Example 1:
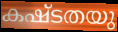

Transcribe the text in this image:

കഷ്ടതയു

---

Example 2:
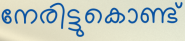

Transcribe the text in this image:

നേരിട്ടുകൊണ്ട്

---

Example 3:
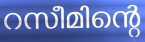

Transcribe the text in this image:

റസീമിന്റെ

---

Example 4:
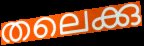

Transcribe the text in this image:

തലെക്കു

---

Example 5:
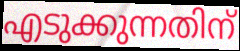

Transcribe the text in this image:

എടുക്കുന്നതിന്